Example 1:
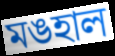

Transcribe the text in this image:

মঙহাল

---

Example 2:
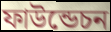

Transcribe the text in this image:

ফাউন্ডেচন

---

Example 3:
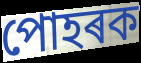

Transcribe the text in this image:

পোহৰক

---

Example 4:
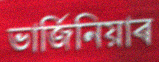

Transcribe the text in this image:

ভাৰ্জিনিয়াৰ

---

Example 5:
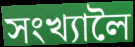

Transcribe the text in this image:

সংখ্যালৈ